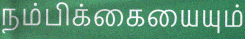
நம்பிக்கையையும்